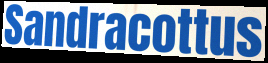
Sandracottus